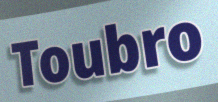
Toubro